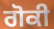
ਗੋਕੀ